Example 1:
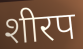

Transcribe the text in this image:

शीरप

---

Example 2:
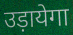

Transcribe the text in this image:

उड़ायेगा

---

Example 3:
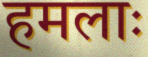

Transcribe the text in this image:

हमलाः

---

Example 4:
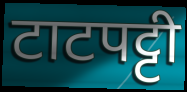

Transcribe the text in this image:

टाटपट्टी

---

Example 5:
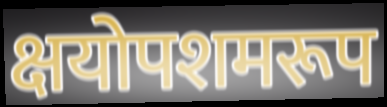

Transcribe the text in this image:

क्षयोपशमरूप